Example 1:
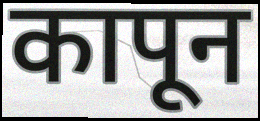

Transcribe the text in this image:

कापून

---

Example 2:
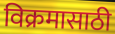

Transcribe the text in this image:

विक्रमासाठी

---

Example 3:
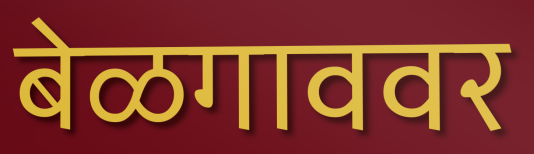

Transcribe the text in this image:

बेळगाववर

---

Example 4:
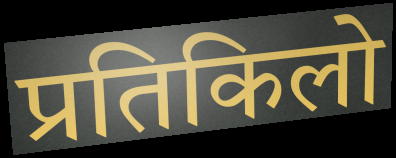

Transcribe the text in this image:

प्रतिकिलो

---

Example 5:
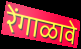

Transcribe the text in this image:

रेंगाळावे